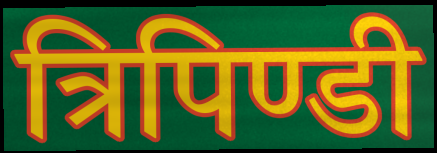
त्रिपिण्डी